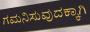
ಗಮನಿಸುವುದಕ್ಕಾಗಿ